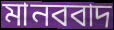
মানববাদ